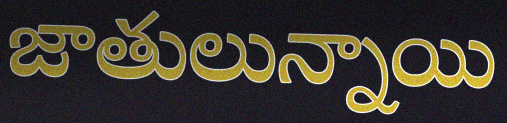
జాతులున్నాయి